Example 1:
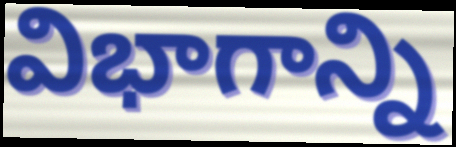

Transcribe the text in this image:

విభాగాన్ని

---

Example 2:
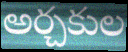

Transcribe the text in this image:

అర్చకుల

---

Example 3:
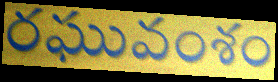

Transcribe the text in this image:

రఘువంశం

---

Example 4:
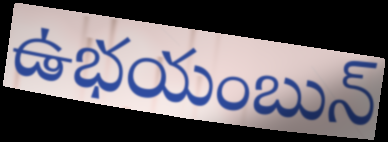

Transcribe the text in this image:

ఉభయంబున్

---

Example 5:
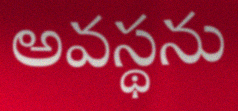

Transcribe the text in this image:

అవస్థను